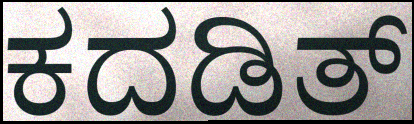
ಕದಡಿತ್